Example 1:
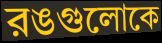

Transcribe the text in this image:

রঙগুলোকে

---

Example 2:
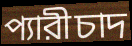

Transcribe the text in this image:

প্যারীচাদ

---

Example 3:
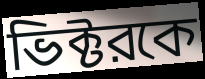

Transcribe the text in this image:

ভিক্টরকে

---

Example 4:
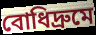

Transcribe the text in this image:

বোধিদ্রুমে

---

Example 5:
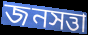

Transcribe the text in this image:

জনসত্তা